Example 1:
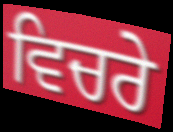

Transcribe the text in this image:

ਵਿਚਰੇ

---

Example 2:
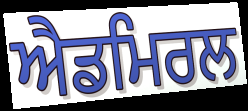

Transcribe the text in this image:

ਐਡਮਿਰਲ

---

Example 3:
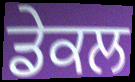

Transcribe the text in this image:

ਡੇਕਲ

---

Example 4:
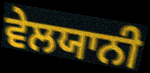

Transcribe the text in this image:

ਵੇਲਯਾਨੀ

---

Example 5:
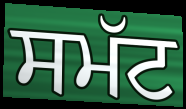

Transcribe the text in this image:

ਸਮੱਟ